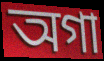
অগা